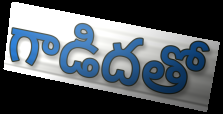
గాడిదతో